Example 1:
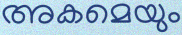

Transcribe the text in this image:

അകമെയും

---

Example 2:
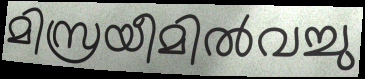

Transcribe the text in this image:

മിസ്രയീമിൽവച്ചു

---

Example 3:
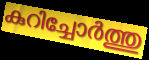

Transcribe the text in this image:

കുറിച്ചോർത്തു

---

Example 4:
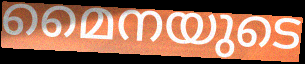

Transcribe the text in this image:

മൈനയുടെ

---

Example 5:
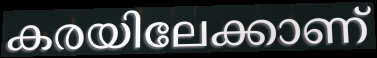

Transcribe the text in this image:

കരയിലേക്കാണ്